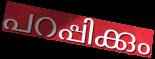
പറപ്പിക്കും